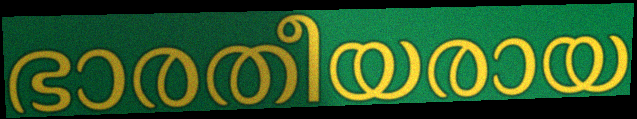
ഭാരതീയരായ